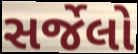
સર્જેલો